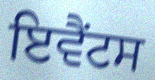
ਇਵੈਂਟਸ